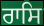
ਰਾਸਿ